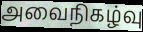
அவைநிகழ்வு